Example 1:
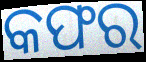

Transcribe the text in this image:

କଫର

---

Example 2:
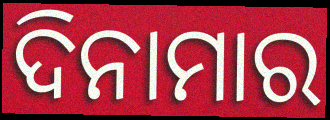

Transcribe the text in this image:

ଦିନାମାର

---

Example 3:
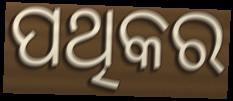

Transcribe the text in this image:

ପଥିକର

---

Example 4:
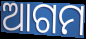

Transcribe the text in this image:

ଆଗମ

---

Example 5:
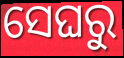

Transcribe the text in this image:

ସେଘରୁ